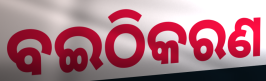
ବଇଠିକରଣ